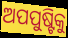
ଅପପୁଷ୍ଟିକୁ